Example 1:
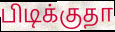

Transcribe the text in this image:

பிடிக்குதா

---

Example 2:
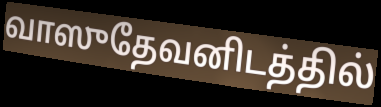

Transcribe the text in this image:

வாஸுதேவனிடத்தில்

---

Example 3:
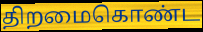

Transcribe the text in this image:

திறமைகொண்ட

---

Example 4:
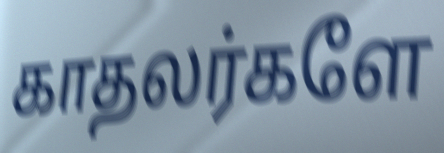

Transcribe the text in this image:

காதலர்களே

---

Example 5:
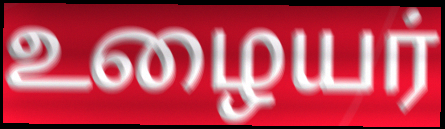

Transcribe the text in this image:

உழையர்